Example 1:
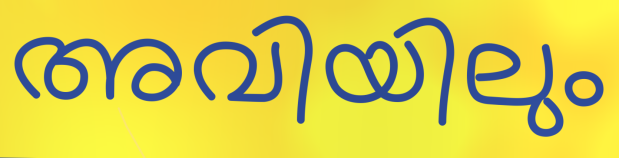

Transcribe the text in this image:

അവിയിലും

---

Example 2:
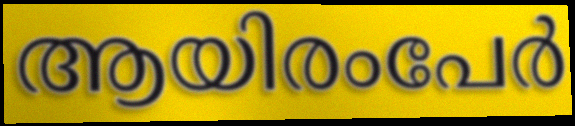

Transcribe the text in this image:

ആയിരംപേർ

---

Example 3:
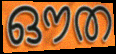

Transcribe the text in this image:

ഔത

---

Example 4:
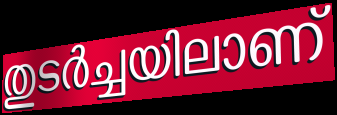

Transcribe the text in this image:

തുടർച്ചയിലാണ്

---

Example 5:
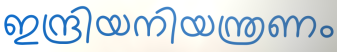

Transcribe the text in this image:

ഇന്ദ്രിയനിയന്ത്രണം